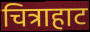
चित्राहाट